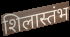
शिलास्तंभ